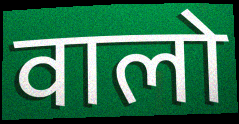
वालो